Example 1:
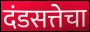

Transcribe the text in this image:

दंडसत्तेचा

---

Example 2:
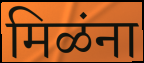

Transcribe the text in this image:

मिळंना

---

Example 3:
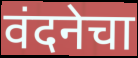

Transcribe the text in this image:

वंदनेचा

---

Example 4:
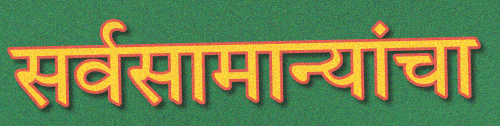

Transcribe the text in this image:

सर्वसामान्यांचा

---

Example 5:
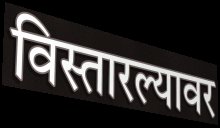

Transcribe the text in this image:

विस्तारल्यावर